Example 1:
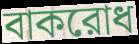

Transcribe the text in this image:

বাকরোধ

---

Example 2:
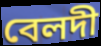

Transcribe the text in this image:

বেলদী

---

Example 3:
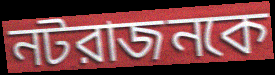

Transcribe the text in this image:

নটরাজনকে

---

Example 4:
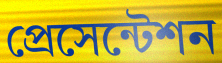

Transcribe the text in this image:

প্রেসেন্টেশন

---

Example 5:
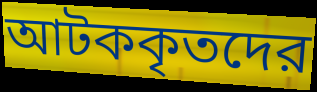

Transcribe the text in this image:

আটককৃতদের